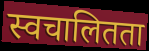
स्वचालितता